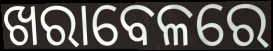
ଖରାବେଳରେ